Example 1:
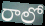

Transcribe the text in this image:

రాలో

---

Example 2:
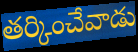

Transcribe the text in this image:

తర్కించేవాడు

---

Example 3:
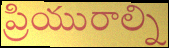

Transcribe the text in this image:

ప్రియురాల్ని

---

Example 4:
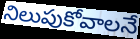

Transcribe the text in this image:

నిలుపుకోవాలనే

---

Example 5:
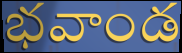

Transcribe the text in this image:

భవాండ